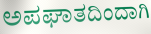
ಅಪಘಾತದಿಂದಾಗಿ